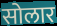
सोलार